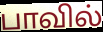
பாவில்